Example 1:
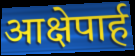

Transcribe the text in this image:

आक्षेपार्ह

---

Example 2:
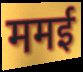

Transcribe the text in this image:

ममई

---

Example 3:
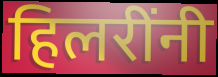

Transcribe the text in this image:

हिलरींनी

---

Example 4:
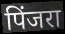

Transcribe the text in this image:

पिंजरा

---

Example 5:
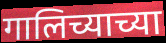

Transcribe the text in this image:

गालिच्याच्या